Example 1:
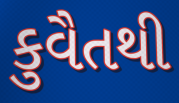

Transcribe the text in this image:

કુવૈતથી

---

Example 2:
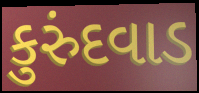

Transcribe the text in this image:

કુરુંદવાડ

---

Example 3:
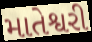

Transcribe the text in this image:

માતેશ્વરી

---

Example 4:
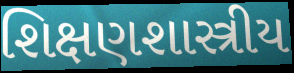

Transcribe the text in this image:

શિક્ષણશાસ્ત્રીય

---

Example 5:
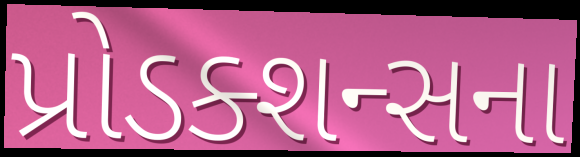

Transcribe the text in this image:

પ્રોડક્શન્સના